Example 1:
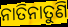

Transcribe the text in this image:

ନାତିନାତୁଣି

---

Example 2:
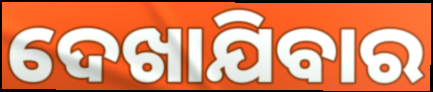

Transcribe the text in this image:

ଦେଖାଯିବାର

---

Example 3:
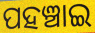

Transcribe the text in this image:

ପହଞ୍ଚାଇ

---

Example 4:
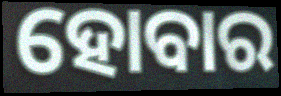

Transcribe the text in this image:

ହୋବାର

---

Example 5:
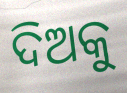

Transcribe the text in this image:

ଦିଅକୁ